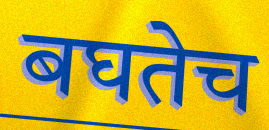
बघतेच